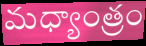
మధ్యాంత్రం